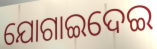
ଯୋଗାଇଦେଇ